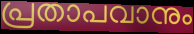
പ്രതാപവാനും